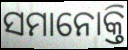
ସମାନୋକ୍ତି